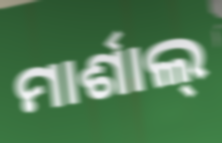
ମାର୍ଶାଲ୍